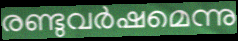
രണ്ടുവർഷമെന്നു